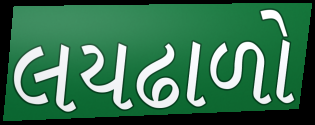
લયઢાળો